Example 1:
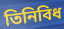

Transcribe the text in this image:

তিনিবিধ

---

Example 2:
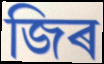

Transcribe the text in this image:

জিৰ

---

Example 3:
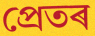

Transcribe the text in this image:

প্ৰেতৰ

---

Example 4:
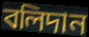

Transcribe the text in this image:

বলিদান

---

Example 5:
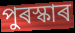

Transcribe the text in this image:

পুৰস্কাৰ